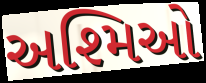
અશ્મિઓ